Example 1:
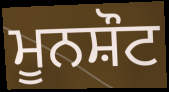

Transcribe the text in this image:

ਮੂਨਸ਼ੌਟ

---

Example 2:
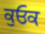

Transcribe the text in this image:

ਕੁਓਕ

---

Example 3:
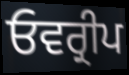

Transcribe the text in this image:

ਓਵਰ੍ਰੀਪ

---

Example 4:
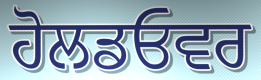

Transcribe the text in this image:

ਹੋਲਡਓਵਰ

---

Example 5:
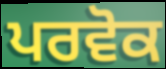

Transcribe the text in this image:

ਪਰਵੋਕ